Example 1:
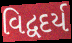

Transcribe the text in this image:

વિદ્વદર્ય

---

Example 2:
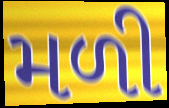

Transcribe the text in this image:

મળી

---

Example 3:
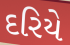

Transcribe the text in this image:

દરિયે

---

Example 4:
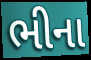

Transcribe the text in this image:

ભીના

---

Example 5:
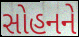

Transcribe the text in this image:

સોહનને